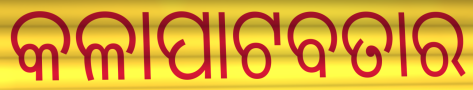
କଳାପାଟବତାର